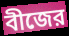
বীজের